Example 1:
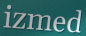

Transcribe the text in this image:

izmed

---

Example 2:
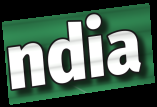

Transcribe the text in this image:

ndia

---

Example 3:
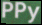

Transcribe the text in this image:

PPy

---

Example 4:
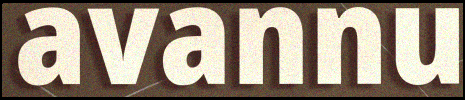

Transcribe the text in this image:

avannu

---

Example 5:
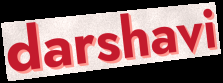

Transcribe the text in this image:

darshavi